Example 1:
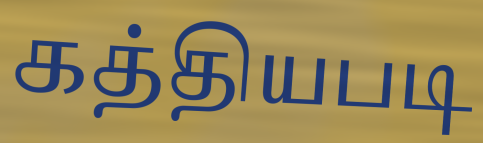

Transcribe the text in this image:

கத்தியபடி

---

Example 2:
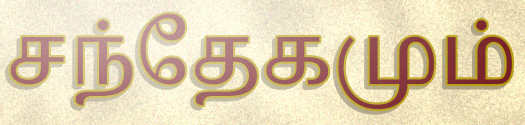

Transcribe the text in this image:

சந்தேகமும்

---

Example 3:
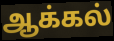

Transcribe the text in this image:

ஆக்கல்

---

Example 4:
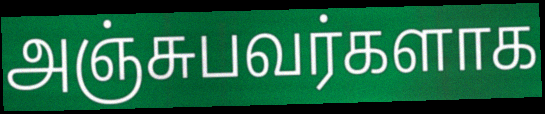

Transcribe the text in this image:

அஞ்சுபவர்களாக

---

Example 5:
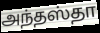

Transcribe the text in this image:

அந்தஸ்தா